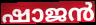
ഷാജൻ